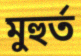
মুহুৰ্ত